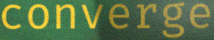
converge